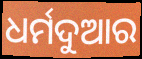
ଧର୍ମଦୁଆର